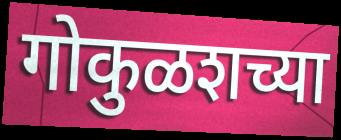
गोकुळशच्या